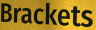
Brackets